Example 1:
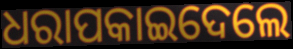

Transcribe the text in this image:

ଧରାପକାଇଦେଲେ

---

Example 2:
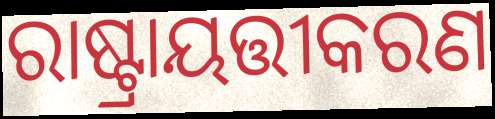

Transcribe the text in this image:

ରାଷ୍ଟ୍ରାୟତ୍ତୀକରଣ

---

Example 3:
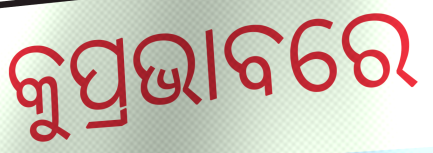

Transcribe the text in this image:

କୁପ୍ରଭାବରେ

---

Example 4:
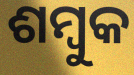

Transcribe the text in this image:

ଶମ୍ବୁକ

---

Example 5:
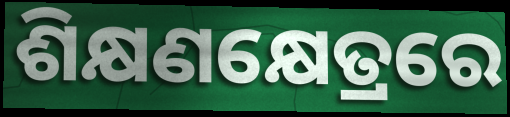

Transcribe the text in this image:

ଶିକ୍ଷଣକ୍ଷେତ୍ରରେ